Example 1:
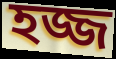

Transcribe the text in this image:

হজ্জ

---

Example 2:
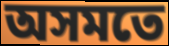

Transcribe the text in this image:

অসমতে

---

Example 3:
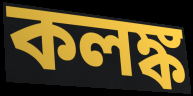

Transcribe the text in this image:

কলঙ্ক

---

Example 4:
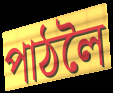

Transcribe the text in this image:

পাঠলৈ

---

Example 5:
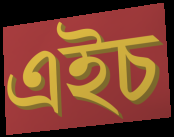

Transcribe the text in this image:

এইচ